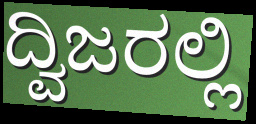
ದ್ವಿಜರಲ್ಲಿ